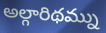
అల్గారిథమ్ను